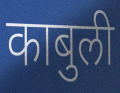
काबुली